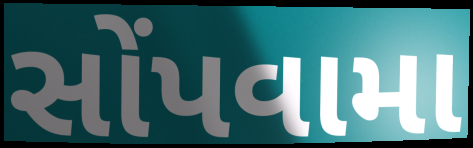
સોંપવામા